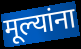
मूल्यांना